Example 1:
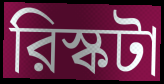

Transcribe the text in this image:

রিস্কটা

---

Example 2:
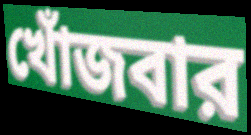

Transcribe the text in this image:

খোঁজবার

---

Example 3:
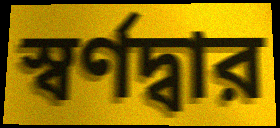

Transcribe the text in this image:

স্বর্ণদ্বার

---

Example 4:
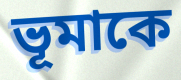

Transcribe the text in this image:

ভূমাকে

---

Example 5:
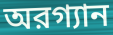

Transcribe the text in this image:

অরগ্যান